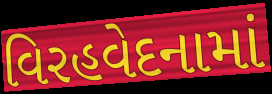
વિરહવેદનામાં